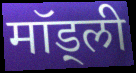
मॉड्ली